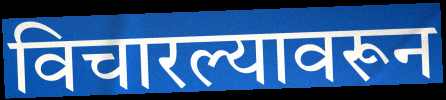
विचारल्यावरून